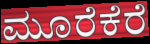
ಮೂರೆಕೆರೆ